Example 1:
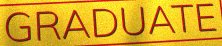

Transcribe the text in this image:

GRADUATE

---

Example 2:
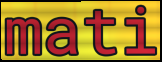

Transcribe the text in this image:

mati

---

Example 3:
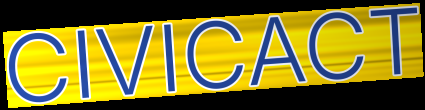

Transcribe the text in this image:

CIVICACT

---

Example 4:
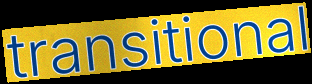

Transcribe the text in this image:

transitional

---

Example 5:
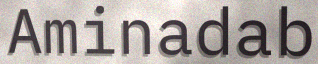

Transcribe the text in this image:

Aminadab